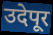
उदेपूर